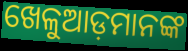
ଖେଳୁଆଡ଼ମାନଙ୍କ